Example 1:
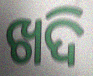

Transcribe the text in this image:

ଖଦି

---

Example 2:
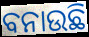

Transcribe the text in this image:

ବନାଉଛି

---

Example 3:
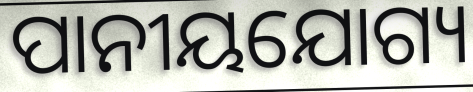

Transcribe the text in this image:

ପାନୀୟଯୋଗ୍ୟ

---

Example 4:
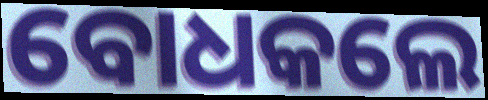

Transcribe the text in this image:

ବୋଧକଲେ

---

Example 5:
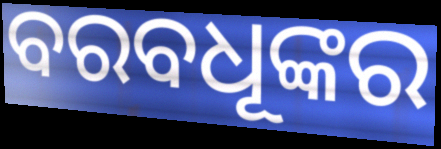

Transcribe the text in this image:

ବରବଧୂଙ୍କର